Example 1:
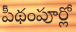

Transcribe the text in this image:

పీథంపూర్లో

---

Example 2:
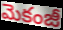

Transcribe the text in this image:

మెకంజీ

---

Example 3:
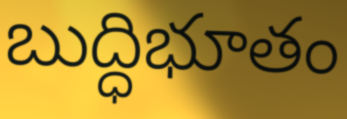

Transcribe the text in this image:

బుద్ధిభూతం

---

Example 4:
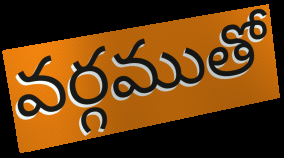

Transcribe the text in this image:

వర్గముతో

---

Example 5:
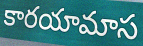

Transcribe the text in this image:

కారయామాస